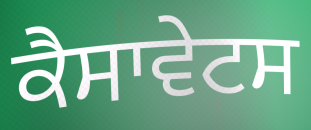
ਕੈਸਾਵੇਟਸ